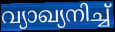
വ്യാഖ്യനിച്ച്